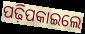
ପଢ଼ିପକାଇଲେ